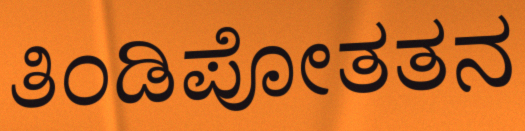
ತಿಂಡಿಪೋತತನ